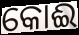
କୋଈ